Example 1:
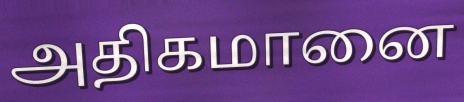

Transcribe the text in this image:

அதிகமானை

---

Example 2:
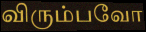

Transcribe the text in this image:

விரும்பவோ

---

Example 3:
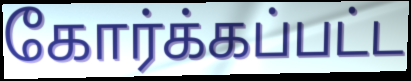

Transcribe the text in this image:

கோர்க்கப்பட்ட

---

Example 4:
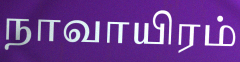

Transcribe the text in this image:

நாவாயிரம்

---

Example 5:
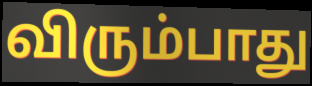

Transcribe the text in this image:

விரும்பாது